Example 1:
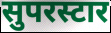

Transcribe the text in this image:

सुपरस्टार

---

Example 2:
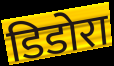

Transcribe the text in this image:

डिडोरा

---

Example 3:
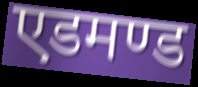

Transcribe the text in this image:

एडमण्ड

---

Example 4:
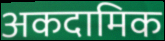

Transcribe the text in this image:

अकदामिक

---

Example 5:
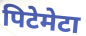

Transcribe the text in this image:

पिटेमेटा